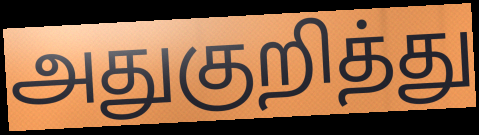
அதுகுறித்து